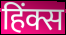
हिंक्स